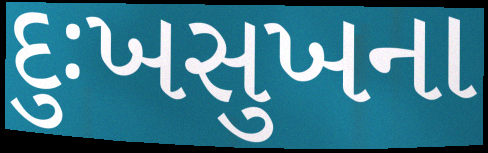
દુઃખસુખના